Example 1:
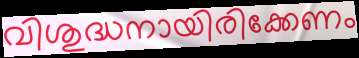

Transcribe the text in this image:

വിശുദ്ധനായിരിക്കേണം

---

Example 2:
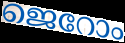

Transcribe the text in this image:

ജെറോം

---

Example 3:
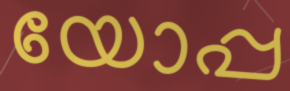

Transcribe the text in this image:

യോപ്പ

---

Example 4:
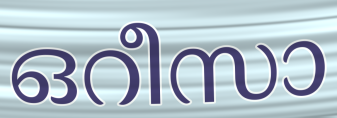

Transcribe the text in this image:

ഒറീസാ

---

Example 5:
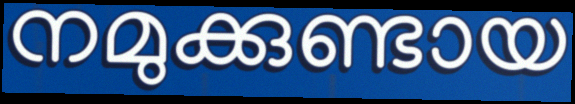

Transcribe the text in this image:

നമുക്കുണ്ടായ